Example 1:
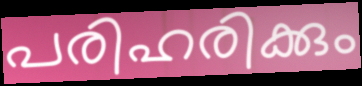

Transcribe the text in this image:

പരിഹരിക്കും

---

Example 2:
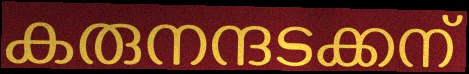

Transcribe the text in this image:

കരുനന്ദടക്കന്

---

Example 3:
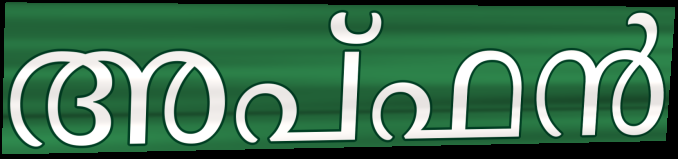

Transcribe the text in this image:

അപ്ഫൻ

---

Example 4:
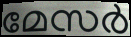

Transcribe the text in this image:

മേസർ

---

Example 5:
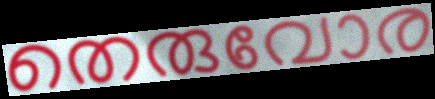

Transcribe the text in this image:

തെരുവോര